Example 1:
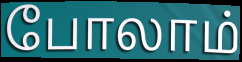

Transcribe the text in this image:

போலாம்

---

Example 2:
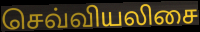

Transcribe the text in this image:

செவ்வியலிசை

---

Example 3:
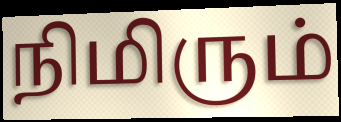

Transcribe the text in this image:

நிமிரும்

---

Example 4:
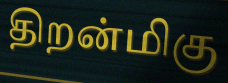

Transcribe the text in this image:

திறன்மிகு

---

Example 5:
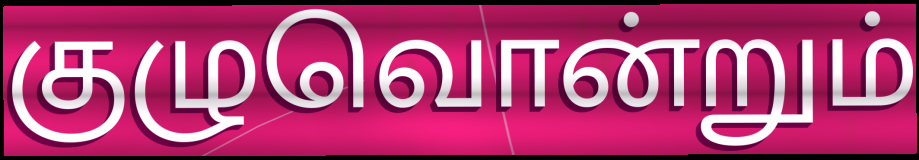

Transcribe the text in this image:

குழுவொன்றும்